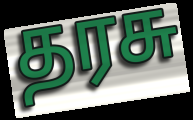
தரசு